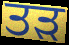
ਤੜ